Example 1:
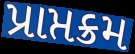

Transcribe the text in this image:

પ્રાપ્તક્રમ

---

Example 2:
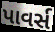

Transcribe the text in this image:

પાવર્સ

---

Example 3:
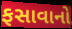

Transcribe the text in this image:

ફસાવાનો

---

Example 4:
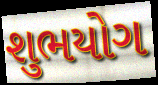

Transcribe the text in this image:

શુભયોગ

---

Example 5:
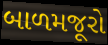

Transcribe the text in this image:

બાળમજૂરો